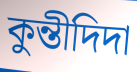
কুন্তীদিদা